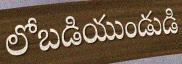
లోబడియుండుడి